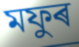
মফুৰ